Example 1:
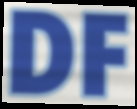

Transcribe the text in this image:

DF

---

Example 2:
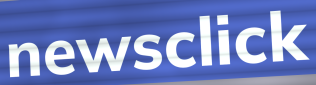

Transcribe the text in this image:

newsclick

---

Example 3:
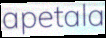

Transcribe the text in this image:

apetala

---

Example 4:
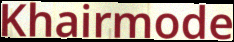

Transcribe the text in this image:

Khairmode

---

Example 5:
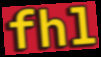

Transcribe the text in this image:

fhl